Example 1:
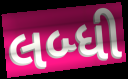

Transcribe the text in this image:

લબ્ધી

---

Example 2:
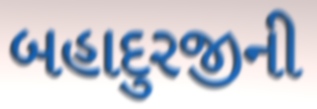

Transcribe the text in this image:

બહાદુરજીની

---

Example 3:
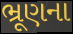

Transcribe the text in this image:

ભ્રૂણના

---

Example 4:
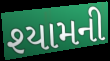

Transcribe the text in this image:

શ્યામની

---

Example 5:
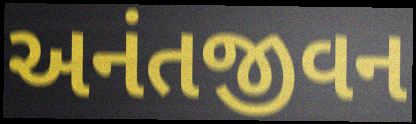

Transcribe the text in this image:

અનંતજીવન